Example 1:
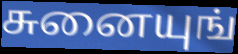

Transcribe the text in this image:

சுனையுங்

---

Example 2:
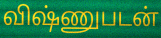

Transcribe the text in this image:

விஷ்ணுபடன்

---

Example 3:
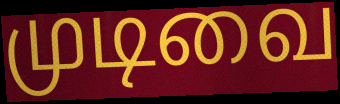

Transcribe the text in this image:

முடிவை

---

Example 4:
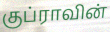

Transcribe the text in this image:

குப்ராவின்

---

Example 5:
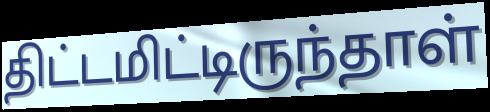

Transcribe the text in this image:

திட்டமிட்டிருந்தாள்